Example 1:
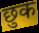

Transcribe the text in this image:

छुक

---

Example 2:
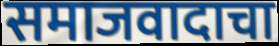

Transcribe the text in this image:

समाजवादाचा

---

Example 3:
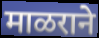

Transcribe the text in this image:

माळराने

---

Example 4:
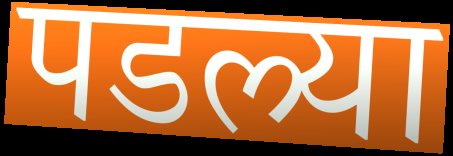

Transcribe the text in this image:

पडल्या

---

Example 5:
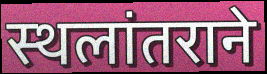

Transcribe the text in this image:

स्थलांतराने